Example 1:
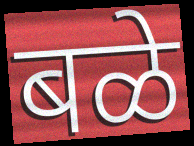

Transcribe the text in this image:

बळे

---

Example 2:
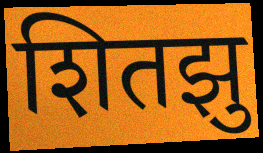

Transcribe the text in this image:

शितझु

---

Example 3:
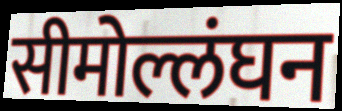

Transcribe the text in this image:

सीमोल्लंघन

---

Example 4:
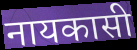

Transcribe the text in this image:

नायकासी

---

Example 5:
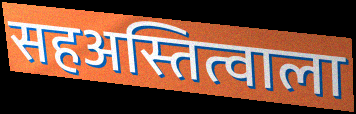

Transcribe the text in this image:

सहअस्तित्वाला